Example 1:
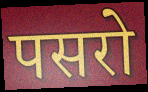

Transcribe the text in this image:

पसरो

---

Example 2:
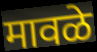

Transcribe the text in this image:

मावळे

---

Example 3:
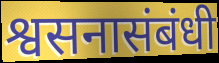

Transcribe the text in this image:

श्वसनासंबंधी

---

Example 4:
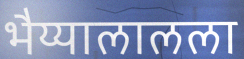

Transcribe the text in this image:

भैय्यालालला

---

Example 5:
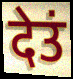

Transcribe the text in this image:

देउं